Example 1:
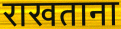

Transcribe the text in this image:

राखताना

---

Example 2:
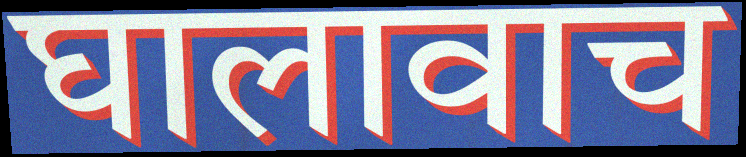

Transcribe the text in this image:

घालावाच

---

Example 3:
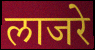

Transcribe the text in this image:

लाजरे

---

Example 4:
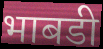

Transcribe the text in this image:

भाबडी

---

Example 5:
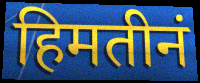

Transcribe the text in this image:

हिमतीनं